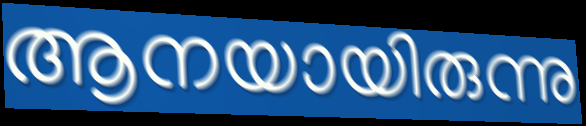
ആനയായിരുന്നു